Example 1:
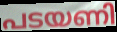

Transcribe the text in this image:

പടയണി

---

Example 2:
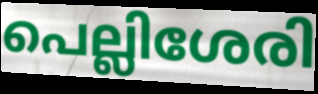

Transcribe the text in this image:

പെല്ലിശേരി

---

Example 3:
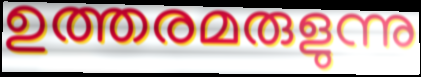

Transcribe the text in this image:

ഉത്തരമരുളുന്നു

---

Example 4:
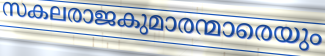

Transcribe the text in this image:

സകലരാജകുമാരന്മാരെയും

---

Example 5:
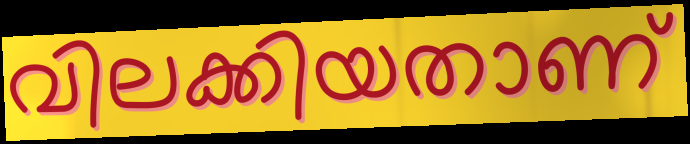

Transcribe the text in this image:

വിലക്കിയതാണ്